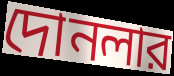
দোনলার